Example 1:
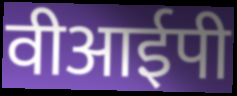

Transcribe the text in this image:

वीआईपी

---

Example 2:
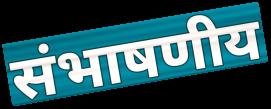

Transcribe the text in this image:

संभाषणीय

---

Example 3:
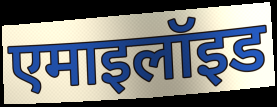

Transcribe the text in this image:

एमाइलॉइड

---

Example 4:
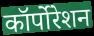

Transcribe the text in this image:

कॉर्पोरेशन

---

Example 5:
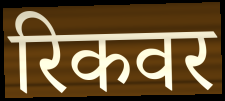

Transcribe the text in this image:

रिकवर